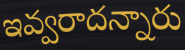
ఇవ్వరాదన్నారు